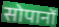
सोपानों